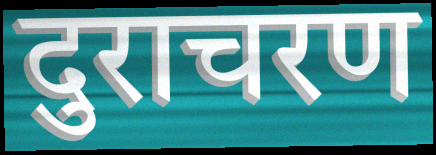
दुराचरण